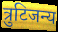
त्रुटिजन्य